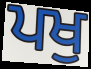
ਪਖੁ